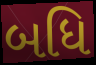
બધિ